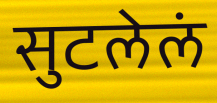
सुटलेलं